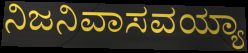
ನಿಜನಿವಾಸವಯ್ಯಾ